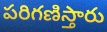
పరిగణిస్తారు